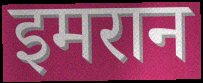
इमरान